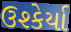
ઉશ્કેર્યા